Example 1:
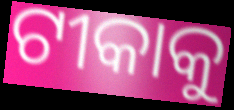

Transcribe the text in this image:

ଟୀକାକୁ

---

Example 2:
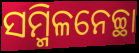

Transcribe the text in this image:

ସମ୍ମିଳନେଚ୍ଛା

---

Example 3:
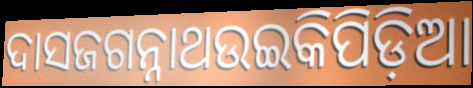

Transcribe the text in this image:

ଦାସଜଗନ୍ନାଥଉଇକିପିଡ଼ିଆ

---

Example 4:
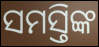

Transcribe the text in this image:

ସମସ୍ତିଙ୍କ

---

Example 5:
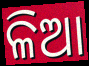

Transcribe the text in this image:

ଳିଆ